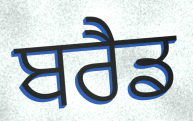
ਬਰੈਡ